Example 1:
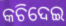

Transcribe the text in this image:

କଚିଦେଇ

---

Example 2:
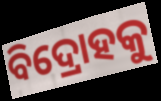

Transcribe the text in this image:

ବିଦ୍ରୋହକୁ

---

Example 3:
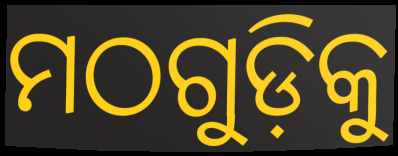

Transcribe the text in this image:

ମଠଗୁଡ଼ିକୁ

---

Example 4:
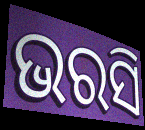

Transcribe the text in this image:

ଭରସି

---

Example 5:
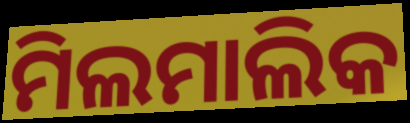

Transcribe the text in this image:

ମିଲମାଲିକ